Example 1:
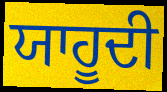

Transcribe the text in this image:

ਯਾਹੂਦੀ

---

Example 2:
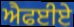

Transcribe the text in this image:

ਐਫਈਏ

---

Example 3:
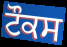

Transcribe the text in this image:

ਟੌਕਸ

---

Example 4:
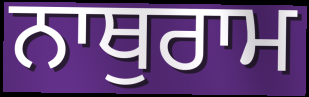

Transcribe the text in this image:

ਨਾਥੁਰਾਮ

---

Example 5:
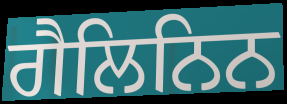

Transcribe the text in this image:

ਗੈਲਿਨਿਨ